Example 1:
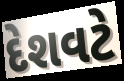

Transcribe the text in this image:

દેશવટે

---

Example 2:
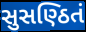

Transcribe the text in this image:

સુસણ્ઠિતં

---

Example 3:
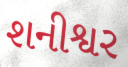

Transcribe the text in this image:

શનીશ્વર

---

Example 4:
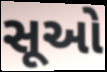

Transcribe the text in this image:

સૂઓ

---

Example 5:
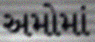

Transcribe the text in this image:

અમોમાં